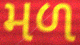
મળ